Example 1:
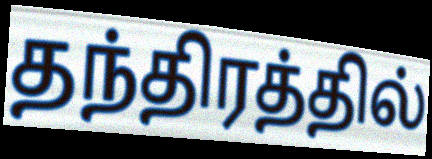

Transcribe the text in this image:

தந்திரத்தில்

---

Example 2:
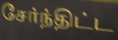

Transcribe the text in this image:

சேர்ந்திட்ட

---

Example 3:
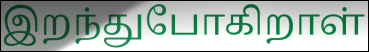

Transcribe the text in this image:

இறந்துபோகிறாள்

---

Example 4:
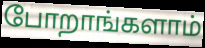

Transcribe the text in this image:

போறாங்களாம்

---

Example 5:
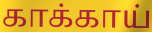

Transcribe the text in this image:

காக்காய்